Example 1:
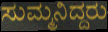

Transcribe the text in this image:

ಸುಮ್ಮನಿದ್ದರು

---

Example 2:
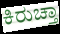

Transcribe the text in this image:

ಕಿರುಚ್ತಾ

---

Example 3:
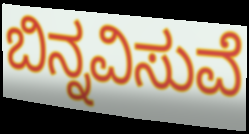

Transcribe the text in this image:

ಬಿನ್ನವಿಸುವೆ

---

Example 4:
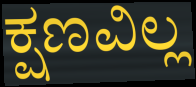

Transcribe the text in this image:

ಕ್ಷಣವಿಲ್ಲ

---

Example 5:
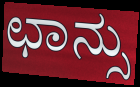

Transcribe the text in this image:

ಛಾನ್ಸು